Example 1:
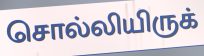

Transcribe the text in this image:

சொல்லியிருக்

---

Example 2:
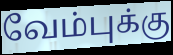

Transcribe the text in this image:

வேம்புக்கு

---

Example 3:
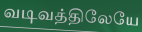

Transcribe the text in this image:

வடிவத்திலேயே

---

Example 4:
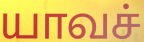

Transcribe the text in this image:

யாவச்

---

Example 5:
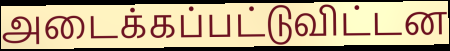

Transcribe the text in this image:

அடைக்கப்பட்டுவிட்டன